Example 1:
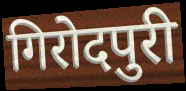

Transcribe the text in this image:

गिरोदपुरी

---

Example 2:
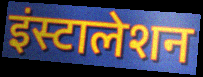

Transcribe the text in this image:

इंस्टालेशन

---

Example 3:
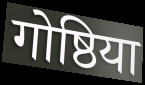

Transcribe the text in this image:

गोष्ठिया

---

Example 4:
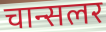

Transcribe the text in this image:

चान्सलर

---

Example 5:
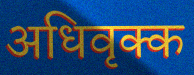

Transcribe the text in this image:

अधिवृक्क